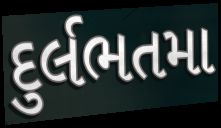
દુર્લભતમા